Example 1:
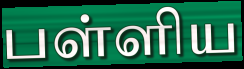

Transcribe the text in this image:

பள்ளிய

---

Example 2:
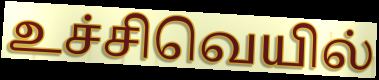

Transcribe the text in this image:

உச்சிவெயில்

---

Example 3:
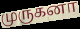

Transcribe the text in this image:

முருகனா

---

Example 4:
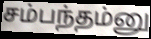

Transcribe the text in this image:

சம்பந்தம்னு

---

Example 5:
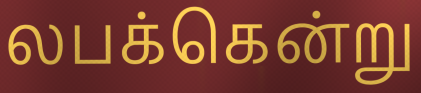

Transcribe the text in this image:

லபக்கென்று